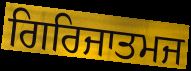
ਗਿਰਿਜਾਤਮਜ